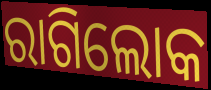
ରାଗିଲୋକ